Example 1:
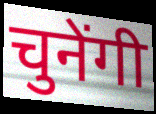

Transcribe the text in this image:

चुनेंगी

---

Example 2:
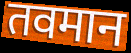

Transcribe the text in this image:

तवमान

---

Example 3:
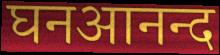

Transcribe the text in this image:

घनआनन्द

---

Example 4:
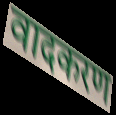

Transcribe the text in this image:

वादकरण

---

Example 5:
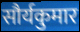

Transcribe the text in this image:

सौर्यकुमार